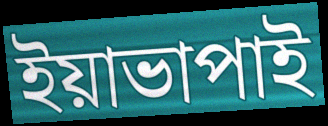
ইয়াভাপাই